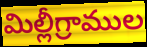
మిల్లీగ్రాముల